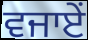
ਵਜਾਏਂ